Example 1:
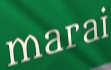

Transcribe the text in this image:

marai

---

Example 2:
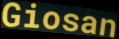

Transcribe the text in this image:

Giosan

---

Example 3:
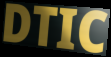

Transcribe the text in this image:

DTIC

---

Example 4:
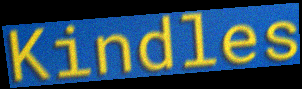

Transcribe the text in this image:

Kindles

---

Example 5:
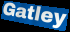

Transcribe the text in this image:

Gatley